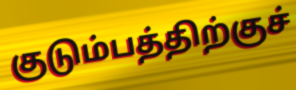
குடும்பத்திற்குச்